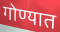
गोण्यात